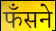
फँसने